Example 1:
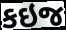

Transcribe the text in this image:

કઇજ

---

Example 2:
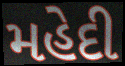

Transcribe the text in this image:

મહેદી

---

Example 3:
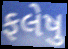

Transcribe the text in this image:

ફલેષુ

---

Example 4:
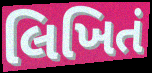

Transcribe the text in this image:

લિખિતં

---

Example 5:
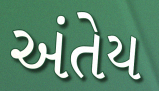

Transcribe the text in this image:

અંતેય